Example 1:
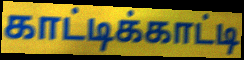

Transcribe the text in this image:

காட்டிக்காட்டி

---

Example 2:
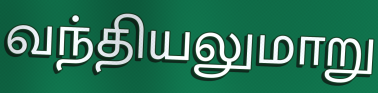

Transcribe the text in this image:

வந்தியலுமாறு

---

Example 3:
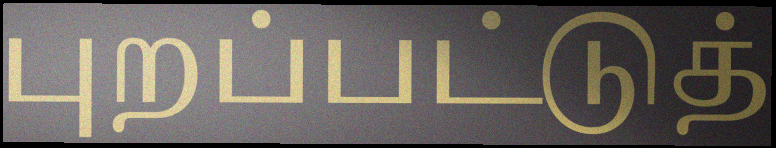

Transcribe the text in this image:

புறப்பட்டுத்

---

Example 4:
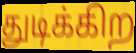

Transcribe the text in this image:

துடிக்கிற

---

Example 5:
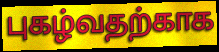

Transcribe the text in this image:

புகழ்வதற்காக